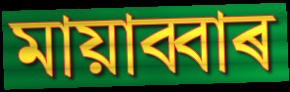
মায়াব্বাৰ